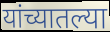
यांच्यातल्या